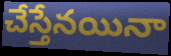
చేస్తేనయినా